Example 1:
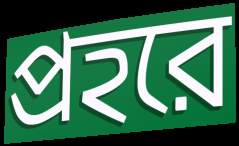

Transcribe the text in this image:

প্রহরে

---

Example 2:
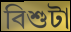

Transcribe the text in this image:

বিশুটা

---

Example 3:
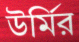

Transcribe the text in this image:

উর্মির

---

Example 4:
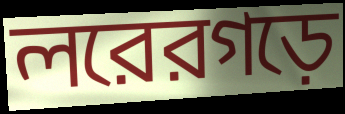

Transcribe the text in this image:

লরেরগড়ে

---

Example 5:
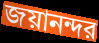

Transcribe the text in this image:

জয়ানন্দর